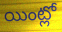
యింట్లో